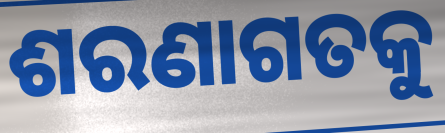
ଶରଣାଗତକୁ